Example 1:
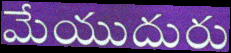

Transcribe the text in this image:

మేయుదురు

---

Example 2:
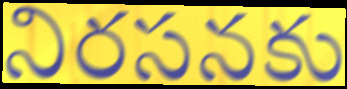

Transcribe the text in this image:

నిరసనకు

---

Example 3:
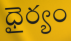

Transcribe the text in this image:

ధైర్యం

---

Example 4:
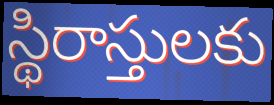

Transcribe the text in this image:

స్థిరాస్తులకు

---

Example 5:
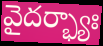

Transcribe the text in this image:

వైదర్భ్యాః